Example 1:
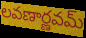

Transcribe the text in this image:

లవణార్ణవమ్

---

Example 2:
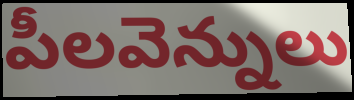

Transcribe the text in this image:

పీలవెన్నులు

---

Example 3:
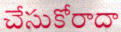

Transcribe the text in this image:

చేసుకోరాదా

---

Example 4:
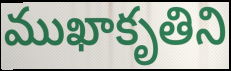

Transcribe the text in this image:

ముఖాకృతిని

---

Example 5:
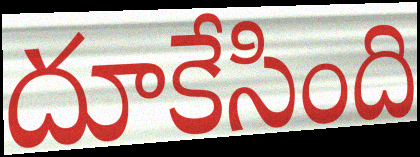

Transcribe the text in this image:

దూకేసింది